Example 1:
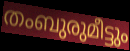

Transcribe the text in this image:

തംബുരുമീട്ടും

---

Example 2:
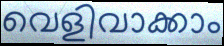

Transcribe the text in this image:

വെളിവാക്കാം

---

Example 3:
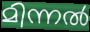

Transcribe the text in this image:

മിന്നൽ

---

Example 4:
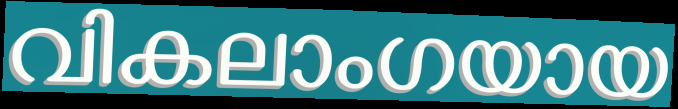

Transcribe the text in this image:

വികലാംഗയായ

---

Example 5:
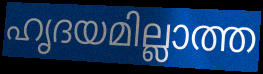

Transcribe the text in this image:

ഹൃദയമില്ലാത്ത